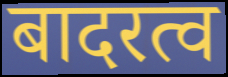
बादरत्व